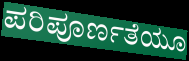
ಪರಿಪೂರ್ಣತೆಯೂ